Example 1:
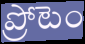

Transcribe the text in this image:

ప్రోటెం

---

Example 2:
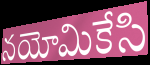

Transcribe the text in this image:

నయోమికేసి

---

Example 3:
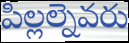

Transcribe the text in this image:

పిల్లల్నెవరు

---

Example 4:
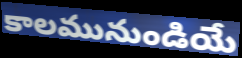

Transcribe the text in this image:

కాలమునుండియే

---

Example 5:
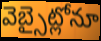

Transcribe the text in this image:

వెబ్సైట్లోనూ